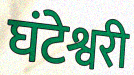
घंटेश्वरी